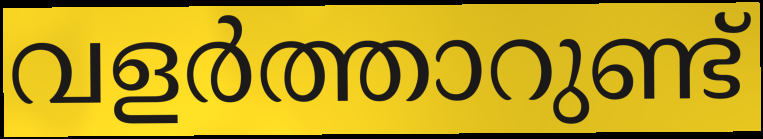
വളർത്താറുണ്ട്